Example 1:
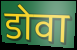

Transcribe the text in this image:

डोवा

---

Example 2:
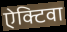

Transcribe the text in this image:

ऐक्टिवा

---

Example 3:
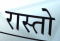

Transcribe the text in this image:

रास्तो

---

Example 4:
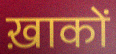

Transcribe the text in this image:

ख़ाकों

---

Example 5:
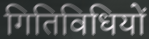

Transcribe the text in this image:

गितिविधियों